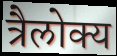
त्रैलोक्य